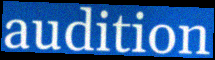
audition